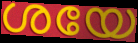
ശയേ